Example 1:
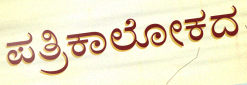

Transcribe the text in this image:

ಪತ್ರಿಕಾಲೋಕದ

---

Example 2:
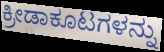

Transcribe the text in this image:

ಕ್ರೀಡಾಕೂಟಗಳನ್ನು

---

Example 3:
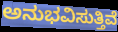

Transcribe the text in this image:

ಅನುಭವಿಸುತ್ತಿವೆ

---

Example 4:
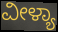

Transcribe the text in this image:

ವೀಳ್ಯಾ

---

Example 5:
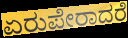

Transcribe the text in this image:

ಏರುಪೇರಾದರೆ